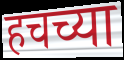
हचच्या